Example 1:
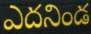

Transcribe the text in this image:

ఎదనిండ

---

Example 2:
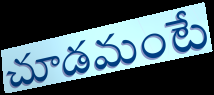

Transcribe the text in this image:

చూడమంటే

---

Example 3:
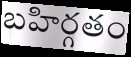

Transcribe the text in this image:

బహిర్గతం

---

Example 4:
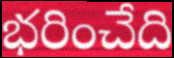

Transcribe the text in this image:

భరించేది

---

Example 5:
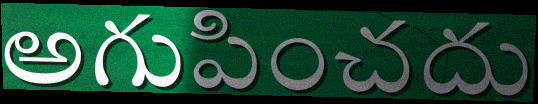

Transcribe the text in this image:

అగుపించదు